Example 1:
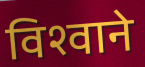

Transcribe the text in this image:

विश्वाने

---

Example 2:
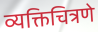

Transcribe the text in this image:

व्यक्तिचित्रणे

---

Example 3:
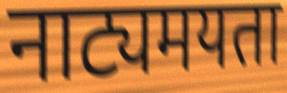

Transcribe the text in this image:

नाट्यमयता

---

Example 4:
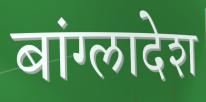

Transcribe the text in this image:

बांग्लादेश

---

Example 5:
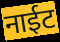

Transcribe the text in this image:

नाईट